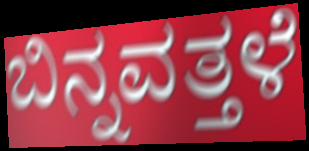
ಬಿನ್ನವತ್ತಳೆ